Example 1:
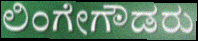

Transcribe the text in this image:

ಲಿಂಗೇಗೌಡರು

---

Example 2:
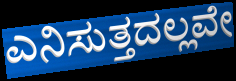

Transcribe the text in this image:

ಎನಿಸುತ್ತದಲ್ಲವೇ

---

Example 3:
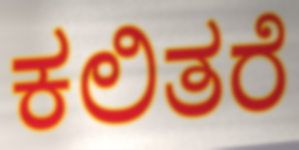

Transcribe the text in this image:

ಕಲಿತರೆ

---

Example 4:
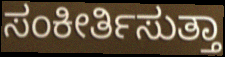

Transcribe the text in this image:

ಸಂಕೀರ್ತಿಸುತ್ತಾ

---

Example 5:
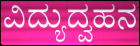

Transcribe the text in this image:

ವಿದ್ಯುದ್ವಹನ